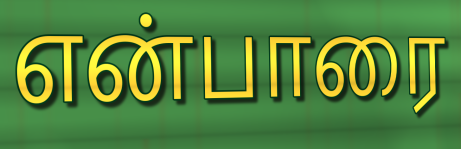
என்பாரை